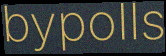
bypolls